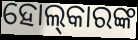
ହୋଲ୍‍କାରଙ୍କ